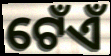
ଟେଁଏଁ